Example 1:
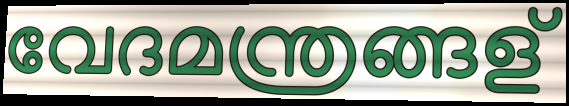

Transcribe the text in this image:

വേദമന്ത്രങ്ങള്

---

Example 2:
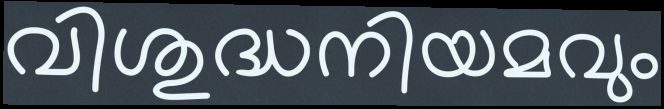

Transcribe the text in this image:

വിശുദ്ധനിയമവും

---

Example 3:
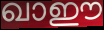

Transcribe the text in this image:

ഖാഈ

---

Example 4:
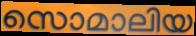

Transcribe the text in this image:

സൊമാലിയ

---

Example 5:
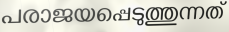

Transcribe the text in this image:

പരാജയപ്പെടുത്തുന്നത്